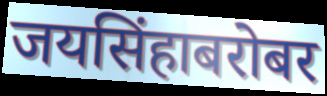
जयसिंहाबरोबर